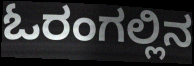
ಓರಂಗಲ್ಲಿನ